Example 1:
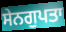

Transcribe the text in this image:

ਸੇਨਗੁਪਤਾ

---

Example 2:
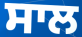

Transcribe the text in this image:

ਸਾਲ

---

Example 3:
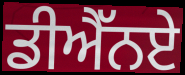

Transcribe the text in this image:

ਡੀਐੱਨਏ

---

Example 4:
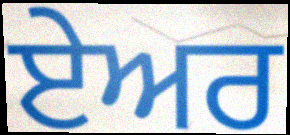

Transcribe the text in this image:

ਏਅਰ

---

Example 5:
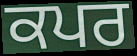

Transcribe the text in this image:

ਕਪਰ